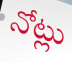
నోట్లు